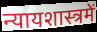
न्यायशास्त्रमें